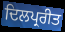
ਦਿਲਪ੍ਰਰੀਤ